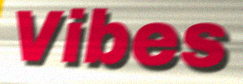
Vibes